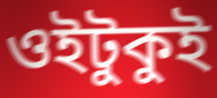
ওইটুকুই